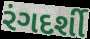
રંગદર્શી